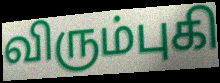
விரும்புகி